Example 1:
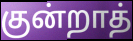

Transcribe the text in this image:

குன்றாத்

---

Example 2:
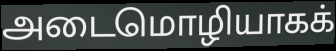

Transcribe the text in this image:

அடைமொழியாகக்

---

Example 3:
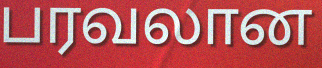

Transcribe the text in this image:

பரவலான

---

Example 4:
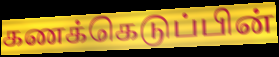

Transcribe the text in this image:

கணக்கெடுப்பின்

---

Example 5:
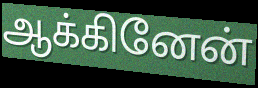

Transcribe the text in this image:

ஆக்கினேன்